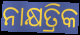
ନାକ୍ଷତ୍ରିକ